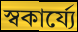
স্বকার্য্যে